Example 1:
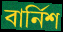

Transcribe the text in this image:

বার্নিশ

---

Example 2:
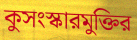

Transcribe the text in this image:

কুসংস্কারমুক্তির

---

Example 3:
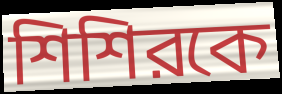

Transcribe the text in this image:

শিশিরকে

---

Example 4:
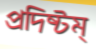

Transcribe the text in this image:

প্রদিষ্টম্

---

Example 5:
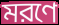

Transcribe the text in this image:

মরণে